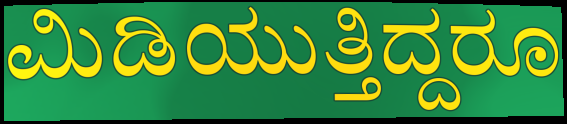
ಮಿಡಿಯುತ್ತಿದ್ದರೂ